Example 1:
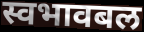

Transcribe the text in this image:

स्वभावबल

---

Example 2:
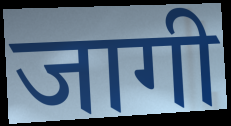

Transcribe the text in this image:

जागी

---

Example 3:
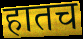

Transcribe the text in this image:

हातच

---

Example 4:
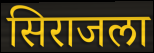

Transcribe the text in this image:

सिराजला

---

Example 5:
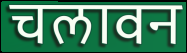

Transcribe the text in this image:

चलावन